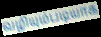
வழியும்படியாக